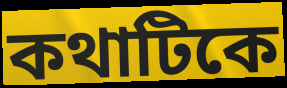
কথাটিকে